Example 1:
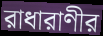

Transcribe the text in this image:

রাধারাণীর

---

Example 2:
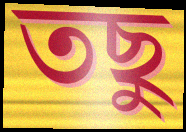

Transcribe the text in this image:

তছু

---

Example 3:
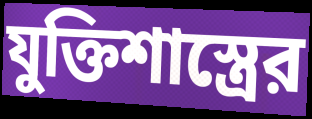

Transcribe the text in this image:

যুক্তিশাস্ত্রের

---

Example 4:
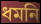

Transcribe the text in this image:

ধমনি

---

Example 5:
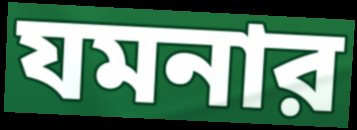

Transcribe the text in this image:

যমনার